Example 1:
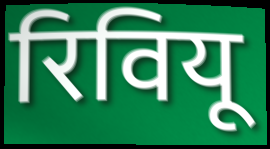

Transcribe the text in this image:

रिवियू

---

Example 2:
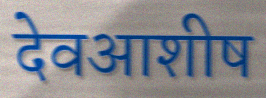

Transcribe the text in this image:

देवआशीष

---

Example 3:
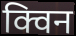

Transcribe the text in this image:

क्विन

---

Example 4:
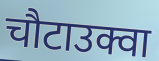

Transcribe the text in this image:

चौटाउक्वा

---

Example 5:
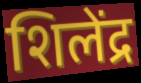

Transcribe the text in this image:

शिलेंद्र